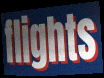
flights